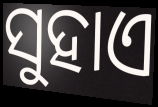
ସୁହାଏ